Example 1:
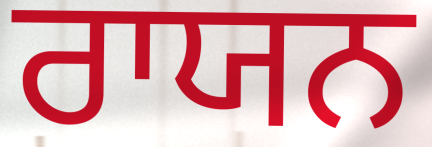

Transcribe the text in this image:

ਰਾਯਨ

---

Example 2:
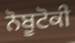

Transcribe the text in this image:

ਨੋਬੂਟੋਕੀ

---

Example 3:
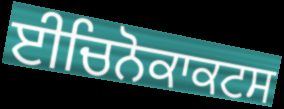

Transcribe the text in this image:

ਈਚਿਨੋਕਾਕਟਸ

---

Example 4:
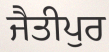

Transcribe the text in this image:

ਜੈਤੀਪੁਰ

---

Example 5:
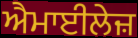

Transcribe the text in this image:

ਐਮਾਈਲੇਜ਼